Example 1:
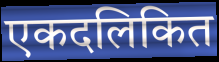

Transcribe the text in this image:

एकदलिकित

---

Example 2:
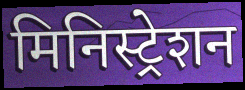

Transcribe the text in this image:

मिनिस्ट्रेशन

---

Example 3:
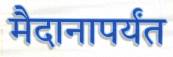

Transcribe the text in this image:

मैदानापर्यंत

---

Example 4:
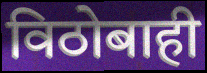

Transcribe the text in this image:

विठोबाही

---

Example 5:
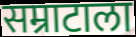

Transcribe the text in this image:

सम्राटाला